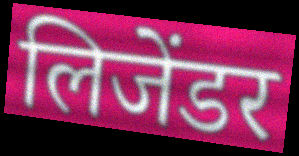
लिजेंडर